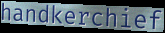
handkerchief